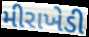
મીરાખેડી